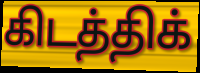
கிடத்திக்